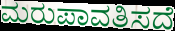
ಮರುಪಾವತಿಸದೆ